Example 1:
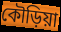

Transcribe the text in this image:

কৌড়িয়া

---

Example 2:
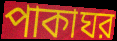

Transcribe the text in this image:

পাকাঘর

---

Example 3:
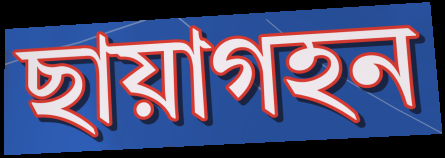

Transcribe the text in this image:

ছায়াগহন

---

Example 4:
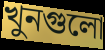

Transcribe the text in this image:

খুনগুলো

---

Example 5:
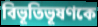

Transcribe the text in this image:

বিভূতিভূষণকে